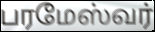
பரமேஸ்வர்